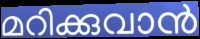
മറിക്കുവാൻ